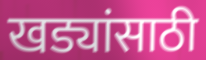
खड्यांसाठी